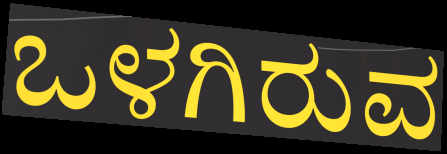
ಒಳಗಿರುವ